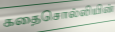
கதைசொல்லியின்